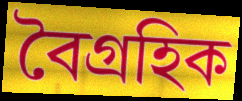
বৈগ্রহিক